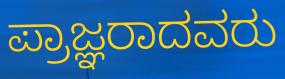
ಪ್ರಾಜ್ಞರಾದವರು